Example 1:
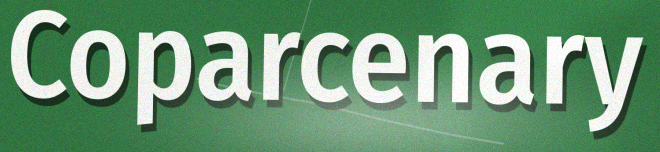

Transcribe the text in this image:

Coparcenary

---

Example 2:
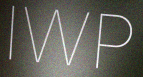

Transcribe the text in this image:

IWP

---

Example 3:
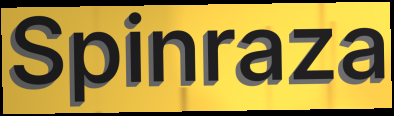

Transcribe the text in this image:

Spinraza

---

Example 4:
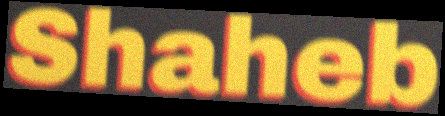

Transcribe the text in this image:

Shaheb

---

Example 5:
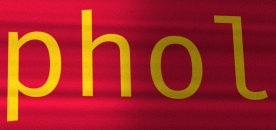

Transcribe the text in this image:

phol